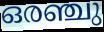
ഒരഞ്ചു